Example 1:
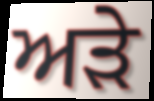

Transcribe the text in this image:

ਅੜੇ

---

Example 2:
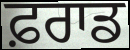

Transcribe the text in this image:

ਫ਼ਰਾਡ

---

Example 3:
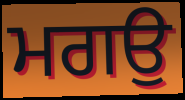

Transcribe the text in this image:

ਮਗਉ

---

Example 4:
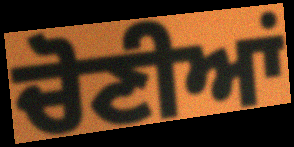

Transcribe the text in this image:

ਚੋਣੀਆਂ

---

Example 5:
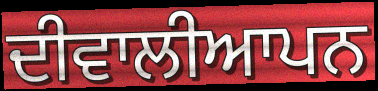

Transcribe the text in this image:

ਦੀਵਾਲੀਆਪਨ